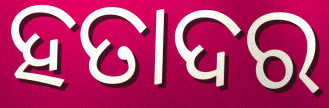
ହତାଦର